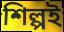
শিল্পই